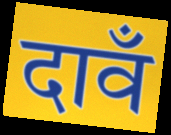
दावँ